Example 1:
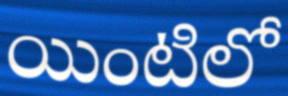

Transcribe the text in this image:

యింటిలో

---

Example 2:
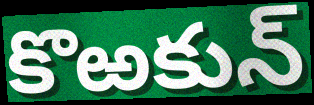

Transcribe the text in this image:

కొఱకున్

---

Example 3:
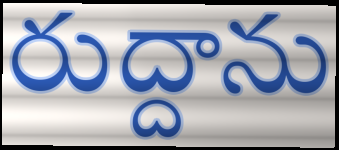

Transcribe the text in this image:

రుద్దాను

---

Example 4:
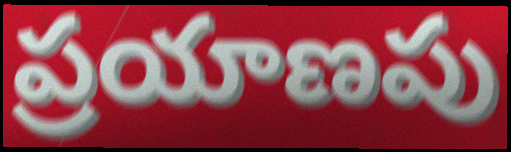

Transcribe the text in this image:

ప్రయాణపు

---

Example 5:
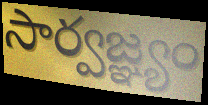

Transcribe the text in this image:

సార్వజ్ఞ్యం